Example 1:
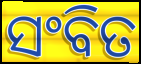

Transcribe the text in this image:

ସଂବିତ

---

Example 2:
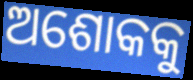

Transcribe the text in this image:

ଅଶୋକକୁ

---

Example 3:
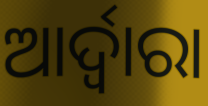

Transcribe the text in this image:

ଆର୍ଦ୍ୱାରା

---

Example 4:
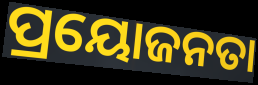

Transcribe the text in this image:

ପ୍ରୟୋଜନତା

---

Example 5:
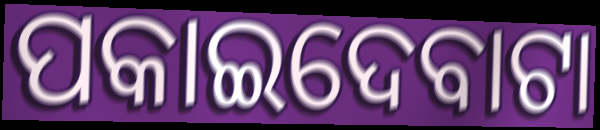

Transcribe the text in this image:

ପକାଇଦେବାଟା